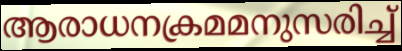
ആരാധനക്രമമനുസരിച്ച്